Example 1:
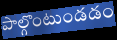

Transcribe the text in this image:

పాల్గొంటుండడం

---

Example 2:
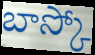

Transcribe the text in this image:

బాస్కో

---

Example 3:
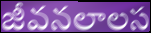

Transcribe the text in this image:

జీవనలాలస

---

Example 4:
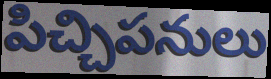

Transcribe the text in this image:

పిచ్చిపనులు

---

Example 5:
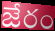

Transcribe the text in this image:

జేరం